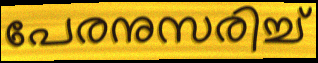
പേരനുസരിച്ച്